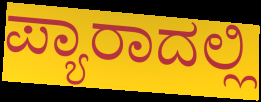
ಪ್ಯಾರಾದಲ್ಲಿ